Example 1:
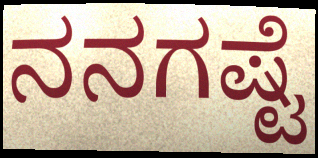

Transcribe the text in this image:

ನನಗಷ್ಟೆ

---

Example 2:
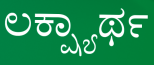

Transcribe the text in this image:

ಲಕ್ಷ್ಯಾರ್ಥ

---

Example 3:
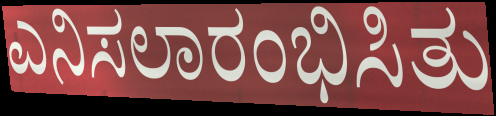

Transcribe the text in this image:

ಎನಿಸಲಾರಂಭಿಸಿತು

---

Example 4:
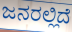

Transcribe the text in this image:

ಜನರಲ್ಲಿದೆ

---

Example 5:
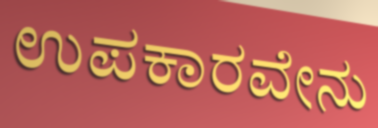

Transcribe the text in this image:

ಉಪಕಾರವೇನು